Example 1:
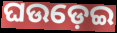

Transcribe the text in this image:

ଘଉଡ଼େଇ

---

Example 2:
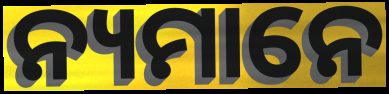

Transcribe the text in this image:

ନ୍ୟମାନେ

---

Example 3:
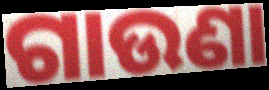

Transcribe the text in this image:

ଗାଉଣା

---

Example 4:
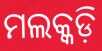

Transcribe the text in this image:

ମଲକ୍କଡ଼ି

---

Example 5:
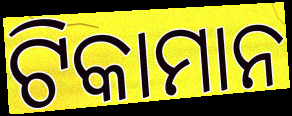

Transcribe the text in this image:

ଟିକାମାନ